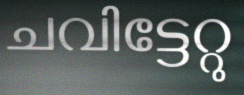
ചവിട്ടേറ്റു